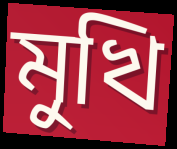
মুখি